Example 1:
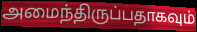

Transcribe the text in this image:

அமைந்திருப்பதாகவும்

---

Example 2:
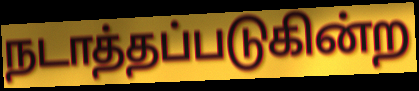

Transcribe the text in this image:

நடாத்தப்படுகின்ற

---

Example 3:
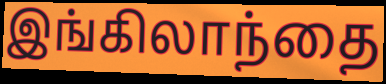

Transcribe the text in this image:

இங்கிலாந்தை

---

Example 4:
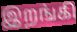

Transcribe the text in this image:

இறங்கி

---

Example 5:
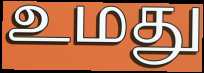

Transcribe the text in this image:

உமது